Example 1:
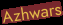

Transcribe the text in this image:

Azhwars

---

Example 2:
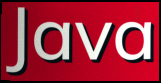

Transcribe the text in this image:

Java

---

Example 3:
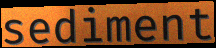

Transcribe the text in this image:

sediment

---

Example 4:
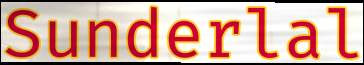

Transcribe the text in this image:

Sunderlal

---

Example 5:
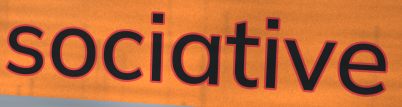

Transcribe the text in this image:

sociative